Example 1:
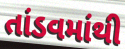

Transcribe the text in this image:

તાંડવમાંથી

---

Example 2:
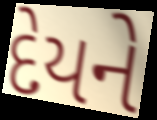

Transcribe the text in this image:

દેયને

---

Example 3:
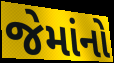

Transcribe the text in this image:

જેમાંનો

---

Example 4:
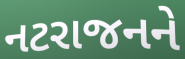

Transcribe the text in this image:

નટરાજનને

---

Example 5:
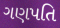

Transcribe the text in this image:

ગણપતિ